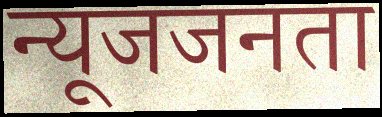
न्यूजजनता